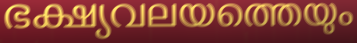
ഭക്ഷ്യവലയത്തെയും